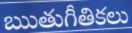
ఋతుగీతికలు